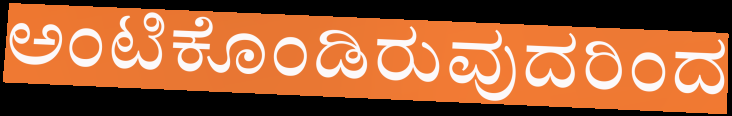
ಅಂಟಿಕೊಂಡಿರುವುದರಿಂದ